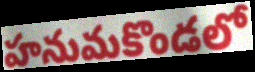
హనుమకొండలో